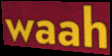
waah